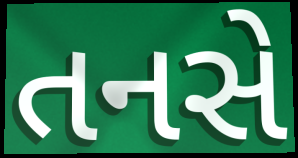
તનસે